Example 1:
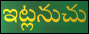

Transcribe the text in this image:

ఇట్లనుచు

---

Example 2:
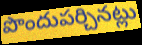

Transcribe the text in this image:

పొందుపర్చినట్లు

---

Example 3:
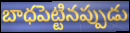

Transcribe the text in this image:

బాధపెట్టినప్పుడు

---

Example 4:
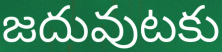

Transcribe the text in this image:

జదువుటకు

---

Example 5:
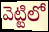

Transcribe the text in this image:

వెట్టిలో